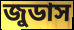
জুডাস